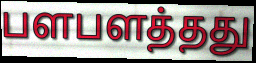
பளபளத்தது